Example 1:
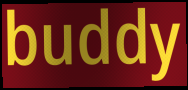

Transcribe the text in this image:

buddy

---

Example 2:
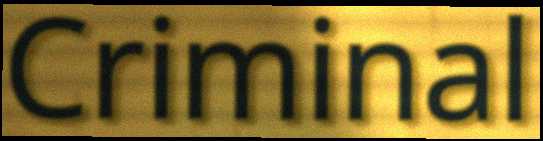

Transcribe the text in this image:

Criminal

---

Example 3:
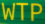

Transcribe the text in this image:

WTP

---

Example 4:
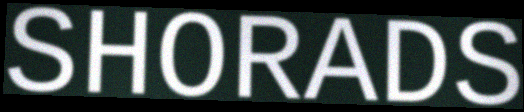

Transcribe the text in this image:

SHORADS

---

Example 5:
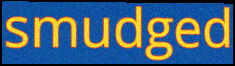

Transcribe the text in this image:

smudged